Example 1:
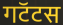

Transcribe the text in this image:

गटॅटस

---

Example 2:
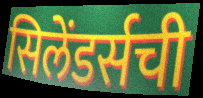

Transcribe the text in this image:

सिलेंडर्सची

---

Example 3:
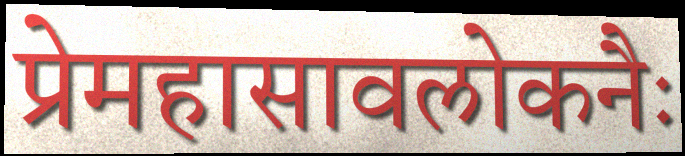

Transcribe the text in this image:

प्रेमहासावलोकनैः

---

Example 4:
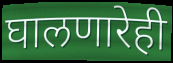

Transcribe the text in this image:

घालणारेही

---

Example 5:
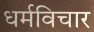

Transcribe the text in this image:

धर्मविचार